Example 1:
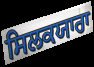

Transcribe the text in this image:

ਸਿਲਕਯਾਰਾ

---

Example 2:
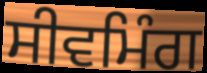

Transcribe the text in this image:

ਸੀਵਮਿੰਗ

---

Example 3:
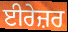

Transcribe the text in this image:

ਈਰੇਜ਼ਰ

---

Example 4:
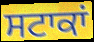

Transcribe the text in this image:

ਸਟਾਕਾਂ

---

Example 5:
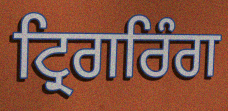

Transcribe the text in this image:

ਟ੍ਰਿਗਰਿੰਗ